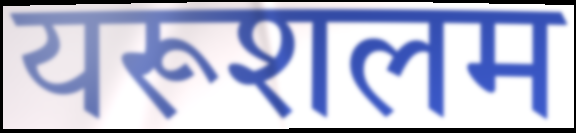
यरूशलम